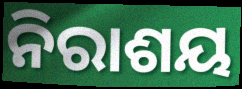
ନିରାଶୟ